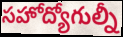
సహోద్యోగుల్నీ